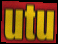
utu